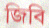
জিবি